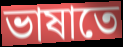
ভাষাতে